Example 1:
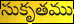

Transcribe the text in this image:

సుకృతము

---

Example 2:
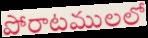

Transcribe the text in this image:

పోరాటములలో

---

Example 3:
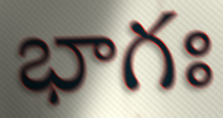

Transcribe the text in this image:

భాగః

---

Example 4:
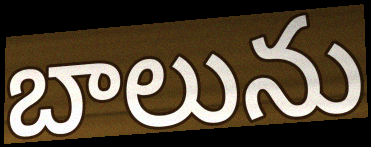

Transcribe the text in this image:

బాలును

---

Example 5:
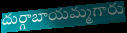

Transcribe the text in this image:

దుర్గాబాయమ్మగారు